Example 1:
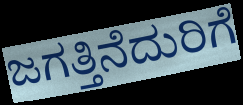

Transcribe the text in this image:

ಜಗತ್ತಿನೆದುರಿಗೆ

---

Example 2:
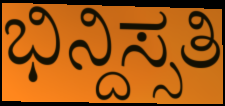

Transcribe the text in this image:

ಭಿನ್ದಿಸ್ಸತಿ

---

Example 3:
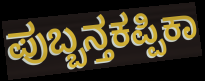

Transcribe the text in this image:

ಪುಬ್ಬನ್ತಕಪ್ಪಿಕಾ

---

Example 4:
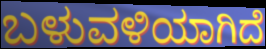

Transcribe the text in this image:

ಬಳುವಳಿಯಾಗಿದೆ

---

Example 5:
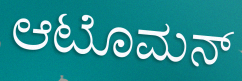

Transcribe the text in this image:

ಆಟೊಮನ್